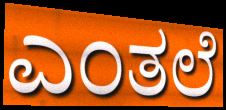
ಎಂತಲೆ